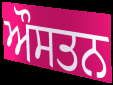
ਔਸਤਨ